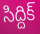
సిద్దిక్